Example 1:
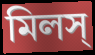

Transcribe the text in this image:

মিলস্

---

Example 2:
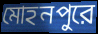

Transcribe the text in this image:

মোহনপুরে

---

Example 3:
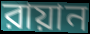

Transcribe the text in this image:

রায়ান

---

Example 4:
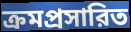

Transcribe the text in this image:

ক্রমপ্রসারিত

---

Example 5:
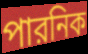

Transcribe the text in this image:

পারনিক